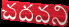
చదవని